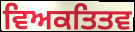
ਵਿਅਕਤਿਤਵ